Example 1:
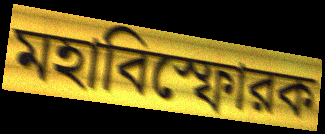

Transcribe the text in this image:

মহাবিস্ফোরক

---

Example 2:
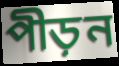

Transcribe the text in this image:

পীড়ন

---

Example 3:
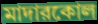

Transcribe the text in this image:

মাদারকোল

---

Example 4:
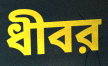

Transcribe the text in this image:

ধীবর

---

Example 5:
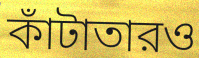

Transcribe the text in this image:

কাঁটাতারও